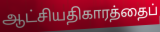
ஆட்சியதிகாரத்தைப்